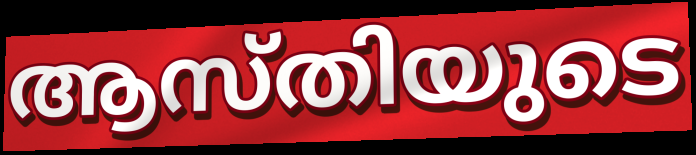
ആസ്തിയുടെ